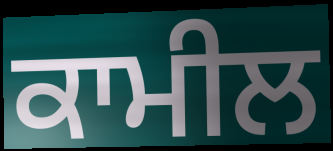
ਕਾਮੀਲ